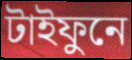
টাইফুনে